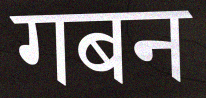
गबन